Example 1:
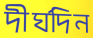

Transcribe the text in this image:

দীৰ্ঘদিন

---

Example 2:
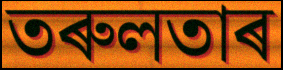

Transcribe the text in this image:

তৰুলতাৰ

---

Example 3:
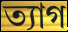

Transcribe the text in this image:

ত্যাগ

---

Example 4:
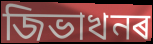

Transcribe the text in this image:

জিভাখনৰ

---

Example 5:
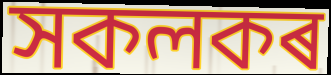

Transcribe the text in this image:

সকলকৰ